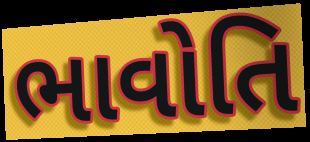
ભાવોતિ